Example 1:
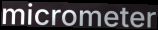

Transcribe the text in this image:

micrometer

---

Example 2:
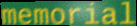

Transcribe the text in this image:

memorial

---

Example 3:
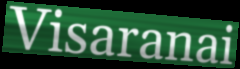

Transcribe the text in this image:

Visaranai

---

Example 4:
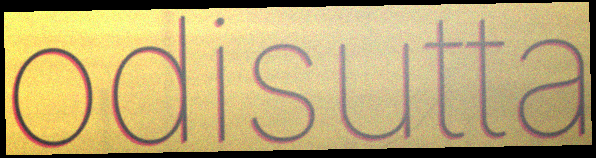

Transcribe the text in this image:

odisutta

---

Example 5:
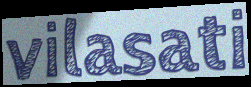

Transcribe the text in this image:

vilasati